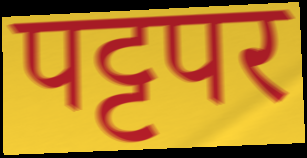
पट्टपर